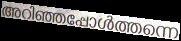
അറിഞ്ഞപ്പോൾത്തന്നെ